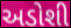
અડોશી